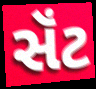
સૅંટ